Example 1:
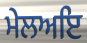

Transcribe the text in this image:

ਮੇਲਅਇ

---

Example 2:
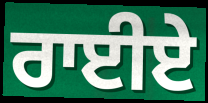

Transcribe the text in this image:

ਰਾਈਏ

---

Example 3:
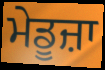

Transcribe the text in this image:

ਮੇਡੂਜ਼ਾ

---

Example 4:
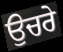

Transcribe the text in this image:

ਉਚਰੇ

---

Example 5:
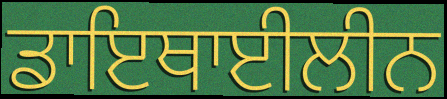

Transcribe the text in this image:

ਡਾਇਥਾਈਲੀਨ